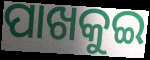
ପାଖକୁଇ